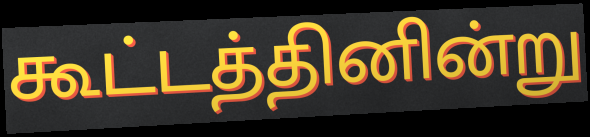
கூட்டத்தினின்று